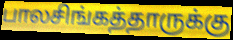
பாலசிங்கத்தாருக்கு